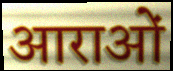
आराओं